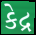
કેદ્ર